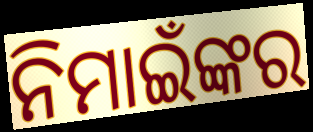
ନିମାଇଁଙ୍କର